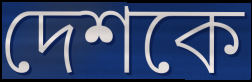
দেশকে